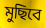
মুছিবে